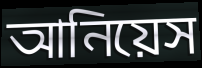
আনিয়েস